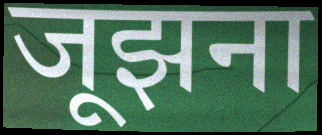
जूझना